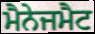
ਮੈਨੇਜਮੈਟ